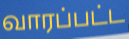
வாரப்பட்ட